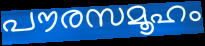
പൗരസമൂഹം